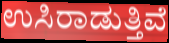
ಉಸಿರಾಡುತ್ತಿವೆ